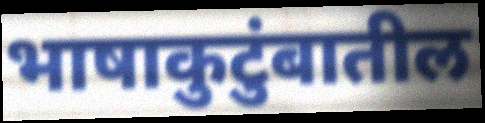
भाषाकुटुंबातील